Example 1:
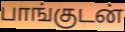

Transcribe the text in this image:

பாங்குடன்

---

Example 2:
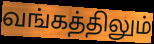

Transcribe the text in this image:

வங்கத்திலும்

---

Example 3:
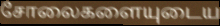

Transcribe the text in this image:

சோலைகளையுடைய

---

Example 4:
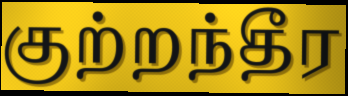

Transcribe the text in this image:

குற்றந்தீர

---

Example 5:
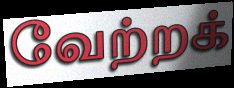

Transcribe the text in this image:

வேற்றக்